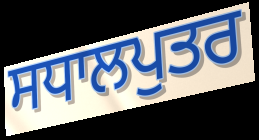
ਸਧਾਲਪੁਤਰ